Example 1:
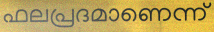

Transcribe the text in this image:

ഫലപ്രദമാണെന്ന്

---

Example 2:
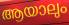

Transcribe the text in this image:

ആയാലും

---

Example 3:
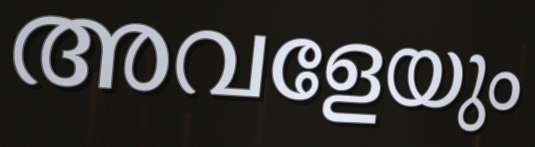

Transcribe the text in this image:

അവളേയും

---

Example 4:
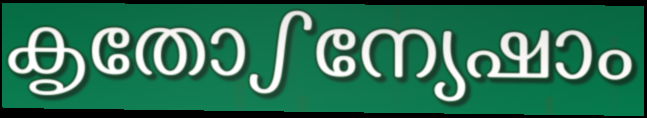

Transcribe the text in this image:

കൃതോഽന്യേഷാം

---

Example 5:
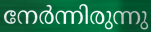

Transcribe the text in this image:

നേർന്നിരുന്നു